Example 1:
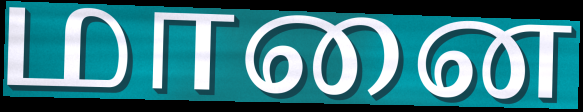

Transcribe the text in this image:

மானை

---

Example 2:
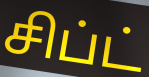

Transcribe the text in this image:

சிப்ட்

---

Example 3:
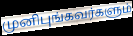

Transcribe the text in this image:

முனிபுங்கவர்களும்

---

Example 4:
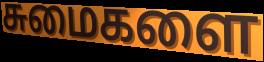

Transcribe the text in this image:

சுமைகளை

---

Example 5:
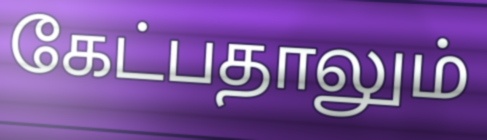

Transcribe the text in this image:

கேட்பதாலும்